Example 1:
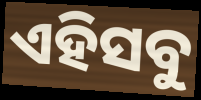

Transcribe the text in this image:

ଏହିସବୁ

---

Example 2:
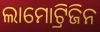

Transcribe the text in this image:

ଲାମୋଟ୍ରିଜିନ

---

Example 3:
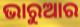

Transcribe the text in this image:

ଭାରୁଆର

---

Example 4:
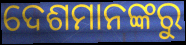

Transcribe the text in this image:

ଦେଶମାନଙ୍କରୁ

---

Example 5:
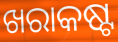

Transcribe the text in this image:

ଖରାକଷ୍ଟ